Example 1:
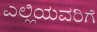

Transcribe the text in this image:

ಎಲ್ಲಿಯವರಿಗೆ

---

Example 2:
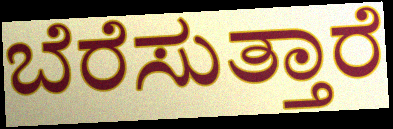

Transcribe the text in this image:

ಬೆರೆಸುತ್ತಾರೆ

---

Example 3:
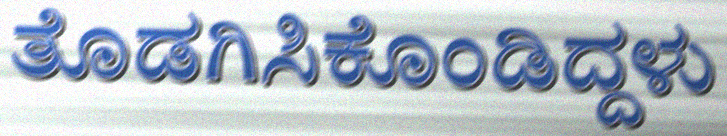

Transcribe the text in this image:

ತೊಡಗಿಸಿಕೊಂಡಿದ್ದಳು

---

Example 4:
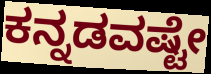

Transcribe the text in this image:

ಕನ್ನಡವಷ್ಟೇ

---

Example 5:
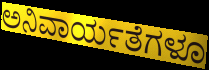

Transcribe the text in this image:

ಅನಿವಾರ್ಯತೆಗಳೂ